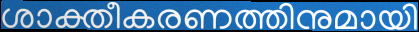
ശാക്തീകരണത്തിനുമായി